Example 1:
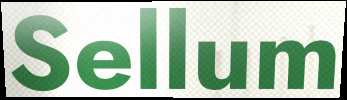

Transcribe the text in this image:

Sellum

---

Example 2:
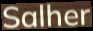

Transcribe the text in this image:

Salher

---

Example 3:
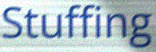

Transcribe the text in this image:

Stuffing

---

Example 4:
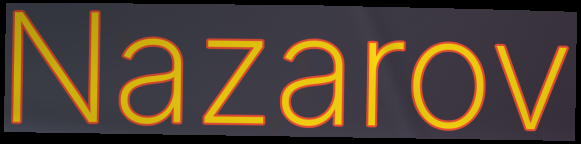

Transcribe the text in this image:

Nazarov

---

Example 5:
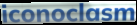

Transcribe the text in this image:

iconoclasm